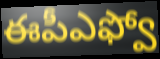
ఈపీఎఫ్వో